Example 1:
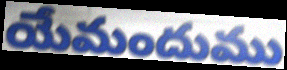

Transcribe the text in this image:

యేమందుము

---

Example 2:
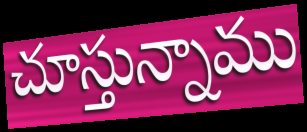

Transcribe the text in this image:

చూస్తున్నాము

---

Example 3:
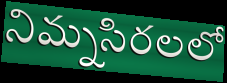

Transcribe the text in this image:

నిమ్నసిరలలో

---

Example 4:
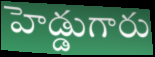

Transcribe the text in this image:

హెడ్డుగారు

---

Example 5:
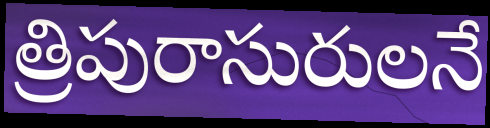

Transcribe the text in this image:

త్రిపురాసురులనే